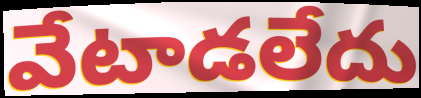
వేటాడలేదు